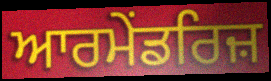
ਆਰਮੇਂਡਰਿਜ਼